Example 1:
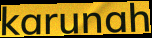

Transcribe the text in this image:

karunah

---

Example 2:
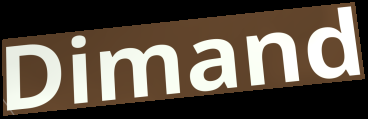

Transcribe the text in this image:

Dimand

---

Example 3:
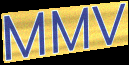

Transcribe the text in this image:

MMV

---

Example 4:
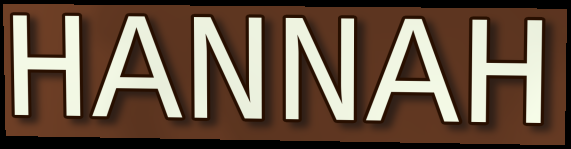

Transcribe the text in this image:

HANNAH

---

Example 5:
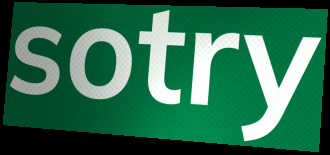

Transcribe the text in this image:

sotry